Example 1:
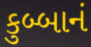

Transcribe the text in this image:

કુબ્બાનં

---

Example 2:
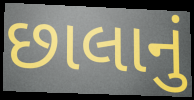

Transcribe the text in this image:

છાલાનું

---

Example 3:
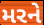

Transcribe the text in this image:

મરને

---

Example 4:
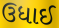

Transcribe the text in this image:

ઉધાઈ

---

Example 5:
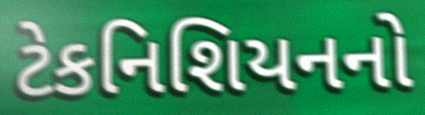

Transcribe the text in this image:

ટેકનિશિયનનો